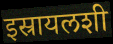
इस्रायलशी